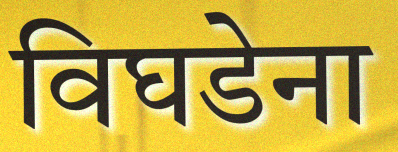
विघडेना